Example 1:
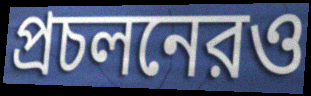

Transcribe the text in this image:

প্রচলনেরও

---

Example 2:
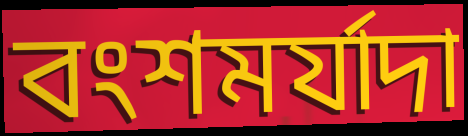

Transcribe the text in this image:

বংশমর্যাদা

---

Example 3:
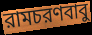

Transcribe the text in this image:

রামচরণবাবু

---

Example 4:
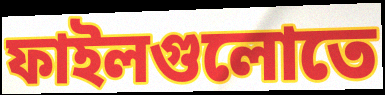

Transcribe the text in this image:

ফাইলগুলোতে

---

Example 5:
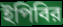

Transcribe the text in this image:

ইপিবির